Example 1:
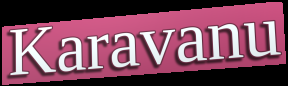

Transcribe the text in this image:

Karavanu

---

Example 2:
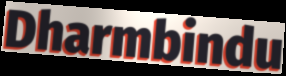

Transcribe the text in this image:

Dharmbindu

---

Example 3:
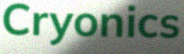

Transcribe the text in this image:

Cryonics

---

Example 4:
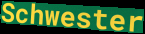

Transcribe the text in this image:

Schwester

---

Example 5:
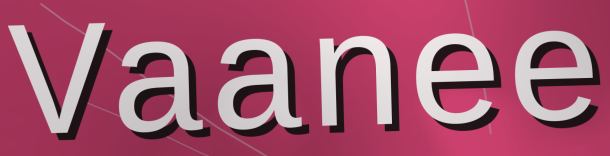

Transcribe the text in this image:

Vaanee